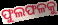
ଫୁଲଫଳକୁ